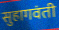
सुहागवंती